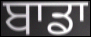
ਬਾਡਾ